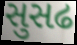
સુસઢ